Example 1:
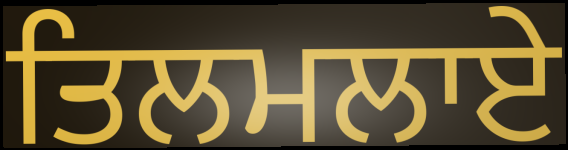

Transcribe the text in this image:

ਤਿਲਮਲਾਏ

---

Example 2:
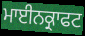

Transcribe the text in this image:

ਮਾਈਨਕ੍ਰਾਫਟ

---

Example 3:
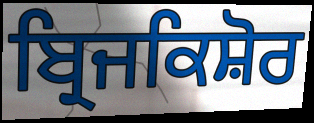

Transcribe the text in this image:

ਬ੍ਰਿਜਕਿਸ਼ੋਰ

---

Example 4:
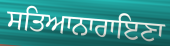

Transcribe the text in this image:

ਸਤਿਆਨਾਰਾਇਣਾ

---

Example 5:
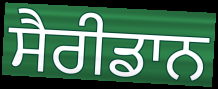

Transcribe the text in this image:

ਸੈਰੀਡਾਨ